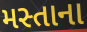
મસ્તાના